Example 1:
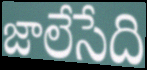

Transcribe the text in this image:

జాలేసేది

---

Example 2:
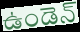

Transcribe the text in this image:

ఉండెన్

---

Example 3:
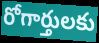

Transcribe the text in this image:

రోగార్తులకు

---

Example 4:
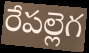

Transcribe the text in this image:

రేపల్లెగ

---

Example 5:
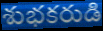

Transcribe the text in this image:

శుభకరుడి